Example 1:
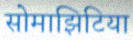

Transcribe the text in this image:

सोमाझिटिया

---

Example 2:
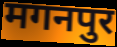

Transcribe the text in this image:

मगनपुर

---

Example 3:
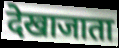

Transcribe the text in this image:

देखाजाता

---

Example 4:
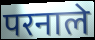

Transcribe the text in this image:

परनाले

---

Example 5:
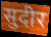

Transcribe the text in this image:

सुदीर